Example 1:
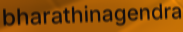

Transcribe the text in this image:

bharathinagendra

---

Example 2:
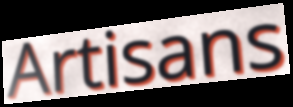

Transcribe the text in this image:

Artisans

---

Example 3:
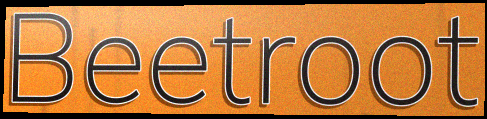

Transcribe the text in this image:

Beetroot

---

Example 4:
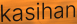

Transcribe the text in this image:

kasihan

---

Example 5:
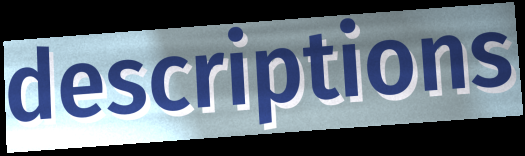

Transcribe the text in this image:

descriptions